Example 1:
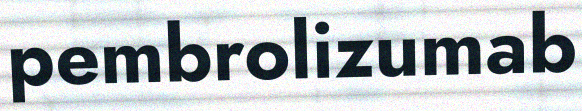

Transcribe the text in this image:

pembrolizumab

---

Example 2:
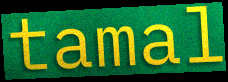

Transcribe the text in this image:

tamal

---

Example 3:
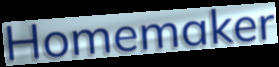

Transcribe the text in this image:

Homemaker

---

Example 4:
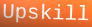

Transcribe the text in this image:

Upskill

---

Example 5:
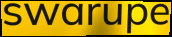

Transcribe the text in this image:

swarupe